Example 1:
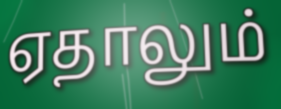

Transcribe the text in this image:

ஏதாலும்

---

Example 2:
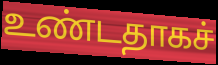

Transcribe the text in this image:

உண்டதாகச்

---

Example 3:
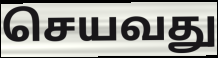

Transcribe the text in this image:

செயவது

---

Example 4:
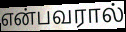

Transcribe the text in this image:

என்பவரால்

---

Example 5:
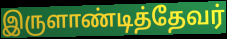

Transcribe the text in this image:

இருளாண்டித்தேவர்